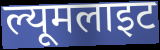
ल्यूमलाइट